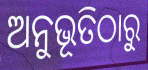
ଅନୁଭୂତିଠାରୁ